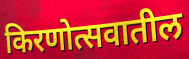
किरणोत्सवातील